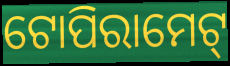
ଟୋପିରାମେଟ୍